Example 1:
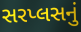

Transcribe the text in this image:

સરપ્લસનું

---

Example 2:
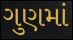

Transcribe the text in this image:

ગુણમાં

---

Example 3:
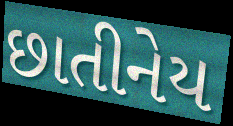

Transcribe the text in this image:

છાતીનેય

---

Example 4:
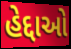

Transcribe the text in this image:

હેદ્દાઓ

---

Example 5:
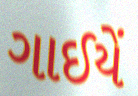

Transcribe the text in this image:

ગાઈયેં